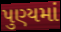
પુણ્યમાં